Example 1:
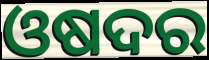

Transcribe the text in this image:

ଓଷଦର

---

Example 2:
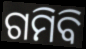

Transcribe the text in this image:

ଗମିବି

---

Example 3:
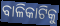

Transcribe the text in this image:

ବାଳିକାଟିକୁ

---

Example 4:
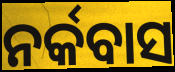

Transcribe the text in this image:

ନର୍କବାସ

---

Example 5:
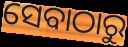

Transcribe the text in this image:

ସେବାଠାରୁ